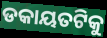
ଡକାୟତଟିକୁ